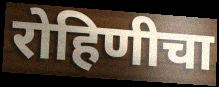
रोहिणीचा